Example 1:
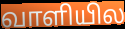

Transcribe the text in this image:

வாளியில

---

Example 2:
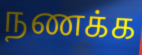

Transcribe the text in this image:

நணக்க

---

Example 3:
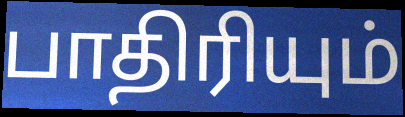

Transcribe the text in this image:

பாதிரியும்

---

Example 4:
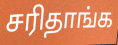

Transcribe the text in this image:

சரிதாங்க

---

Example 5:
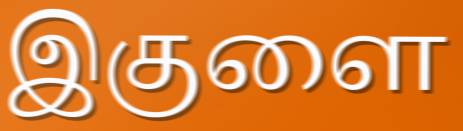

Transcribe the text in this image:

இகுளை